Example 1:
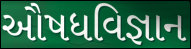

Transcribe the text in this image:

ઔષધવિજ્ઞાન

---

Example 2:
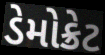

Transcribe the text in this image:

ડેમોક્રેટ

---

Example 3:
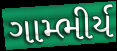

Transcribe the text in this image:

ગામ્ભીર્ય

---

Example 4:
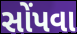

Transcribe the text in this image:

સોંપવા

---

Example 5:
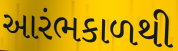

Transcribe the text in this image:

આરંભકાળથી